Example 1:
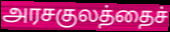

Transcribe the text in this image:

அரசகுலத்தைச்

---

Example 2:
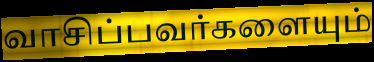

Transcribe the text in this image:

வாசிப்பவர்களையும்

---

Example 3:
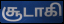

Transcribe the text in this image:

சூடாகி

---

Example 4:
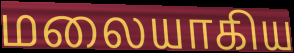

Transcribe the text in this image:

மலையாகிய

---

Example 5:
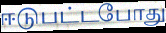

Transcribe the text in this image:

ஈடுபட்டபோது